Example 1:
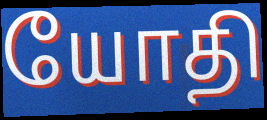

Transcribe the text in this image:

யோதி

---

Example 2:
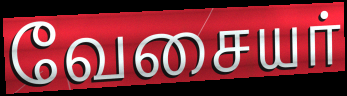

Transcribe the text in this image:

வேசையர்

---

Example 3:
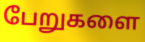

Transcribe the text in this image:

பேறுகளை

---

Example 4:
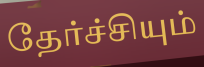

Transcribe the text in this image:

தேர்ச்சியும்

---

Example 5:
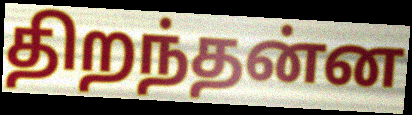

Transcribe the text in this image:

திறந்தன்ன